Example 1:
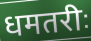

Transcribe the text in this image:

धमतरीः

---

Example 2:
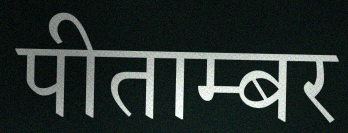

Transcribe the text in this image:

पीताम्बर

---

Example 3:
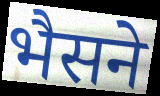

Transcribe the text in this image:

भैसने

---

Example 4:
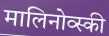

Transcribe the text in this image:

मालिनोव्स्की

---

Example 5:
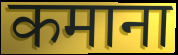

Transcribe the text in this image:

कमाना